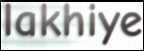
lakhiye